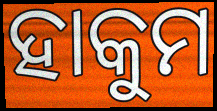
ହାକୁମ